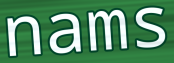
nams